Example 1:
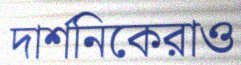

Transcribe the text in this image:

দার্শনিকেরাও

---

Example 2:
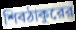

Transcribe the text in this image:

শিবঠাকুরের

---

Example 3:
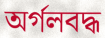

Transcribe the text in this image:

অর্গলবদ্ধ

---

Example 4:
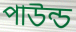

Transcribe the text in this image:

পাউন্ড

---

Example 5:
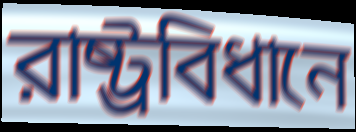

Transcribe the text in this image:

রাষ্ট্রবিধানে